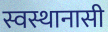
स्वस्थानासी